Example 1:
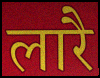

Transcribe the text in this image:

लारै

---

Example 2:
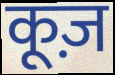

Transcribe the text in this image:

कूज़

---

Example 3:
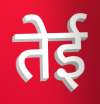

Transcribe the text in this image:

तेई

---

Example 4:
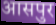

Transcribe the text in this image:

आसपुर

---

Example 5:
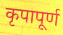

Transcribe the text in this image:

कृपापूर्ण